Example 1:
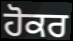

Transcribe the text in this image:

ਹੋਕਰ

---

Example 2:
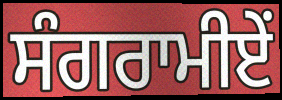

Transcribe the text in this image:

ਸੰਗਰਾਮੀਏਂ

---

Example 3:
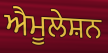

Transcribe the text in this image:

ਐਮੂਲੇਸ਼ਨ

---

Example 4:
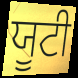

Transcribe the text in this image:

ਯੂਟੀ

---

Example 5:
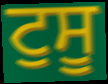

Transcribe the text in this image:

ਟੁਸੂ